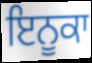
ਇਨੂਕਾ